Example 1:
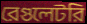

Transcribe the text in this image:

রেগুলেটরি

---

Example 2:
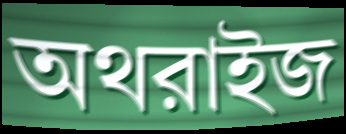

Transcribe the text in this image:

অথরাইজ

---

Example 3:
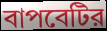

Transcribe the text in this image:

বাপবেটির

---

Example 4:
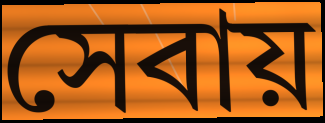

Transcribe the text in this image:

সেবায়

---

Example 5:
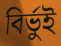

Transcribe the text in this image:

বির্ভুই